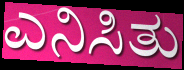
ಎನಿಸಿತು